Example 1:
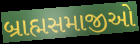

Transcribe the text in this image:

બ્રાહ્મસમાજીઓ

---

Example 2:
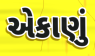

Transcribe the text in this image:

એકાણું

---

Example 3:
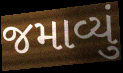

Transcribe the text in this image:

જમાવ્યું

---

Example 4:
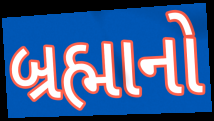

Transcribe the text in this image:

બ્રહ્માનો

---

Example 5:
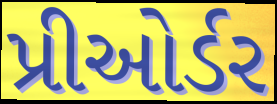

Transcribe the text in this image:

પ્રીઓર્ડર